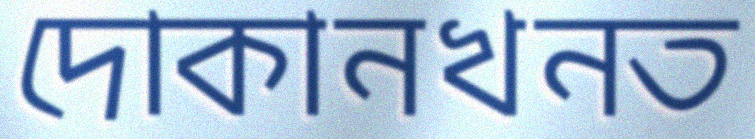
দোকানখনত